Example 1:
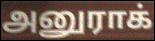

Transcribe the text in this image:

அனுராக்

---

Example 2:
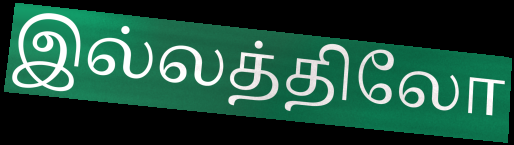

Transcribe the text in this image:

இல்லத்திலோ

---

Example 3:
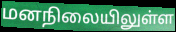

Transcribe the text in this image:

மனநிலையிலுள்ள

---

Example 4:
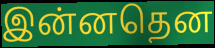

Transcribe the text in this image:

இன்னதென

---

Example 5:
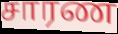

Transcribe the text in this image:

சாரண